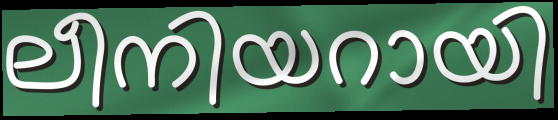
ലീനിയറായി